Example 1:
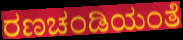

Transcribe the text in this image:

ರಣಚಂಡಿಯಂತೆ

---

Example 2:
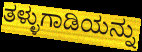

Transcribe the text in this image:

ತಳ್ಳುಗಾಡಿಯನ್ನು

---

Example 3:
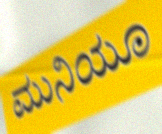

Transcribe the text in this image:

ಮುನಿಯೂ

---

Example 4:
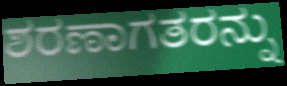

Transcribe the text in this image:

ಶರಣಾಗತರನ್ನು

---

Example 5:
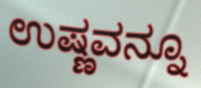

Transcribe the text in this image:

ಉಷ್ಣವನ್ನೂ